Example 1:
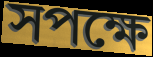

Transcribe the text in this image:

সপক্ষে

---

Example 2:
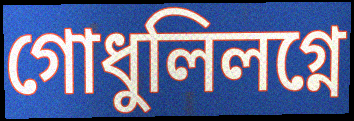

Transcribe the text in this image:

গোধুলিলগ্নে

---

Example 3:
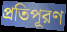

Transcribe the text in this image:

প্রতিপূরণ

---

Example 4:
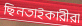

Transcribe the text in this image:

ছিনতাইকারীরা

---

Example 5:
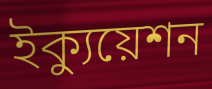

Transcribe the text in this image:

ইক্যুয়েশন